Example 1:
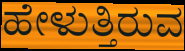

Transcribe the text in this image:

ಹೇಳುತ್ತಿರುವ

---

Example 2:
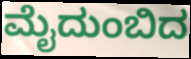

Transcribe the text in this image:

ಮೈದುಂಬಿದ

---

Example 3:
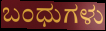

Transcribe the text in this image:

ಬಂಧುಗಳು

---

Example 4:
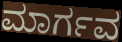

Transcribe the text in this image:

ಮಾರ್ಗವ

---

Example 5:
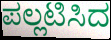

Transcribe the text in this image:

ಪಲ್ಲಟಿಸಿದ